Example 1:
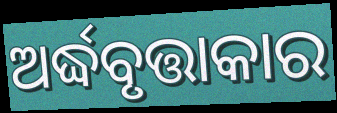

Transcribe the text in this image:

ଅର୍ଦ୍ଧବୃତ୍ତାକାର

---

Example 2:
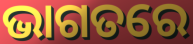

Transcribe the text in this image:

ଭାଗତରେ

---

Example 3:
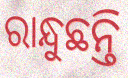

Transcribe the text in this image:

ରାନ୍ଧୁଛନ୍ତି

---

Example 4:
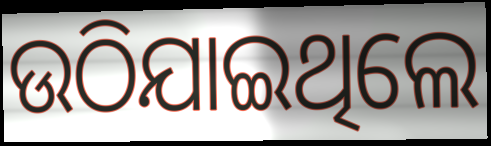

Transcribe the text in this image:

ଉଠିଯାଇଥିଲେ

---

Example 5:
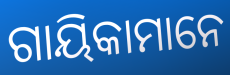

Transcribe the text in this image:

ଗାୟିକାମାନେ